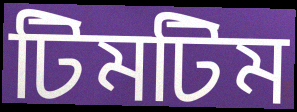
টিমটিম